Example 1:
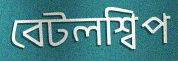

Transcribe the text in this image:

বেটলশ্বিপ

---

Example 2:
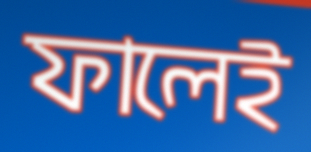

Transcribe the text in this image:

ফালেই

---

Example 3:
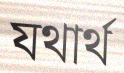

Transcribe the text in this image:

যথাৰ্থ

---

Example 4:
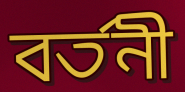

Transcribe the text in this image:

বৰ্তনী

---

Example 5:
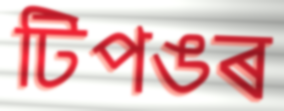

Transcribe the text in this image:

টিপঙৰ